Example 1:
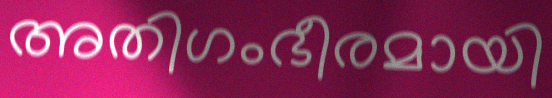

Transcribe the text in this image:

അതിഗംഭീരമായി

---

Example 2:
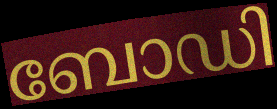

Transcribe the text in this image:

ബോഡി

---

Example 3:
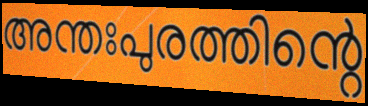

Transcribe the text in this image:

അന്തഃപുരത്തിന്റെ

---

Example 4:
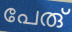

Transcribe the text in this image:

പേരു്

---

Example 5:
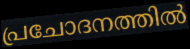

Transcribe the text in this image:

പ്രചോദനത്തിൽ